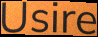
Usire